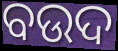
ବଉଦ